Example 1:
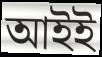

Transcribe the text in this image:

আইই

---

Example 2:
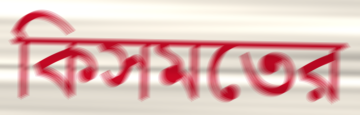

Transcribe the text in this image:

কিসমতের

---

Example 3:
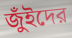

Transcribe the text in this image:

জুঁইদের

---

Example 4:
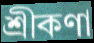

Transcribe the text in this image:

শ্রীকণা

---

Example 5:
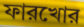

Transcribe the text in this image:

ফারখোর